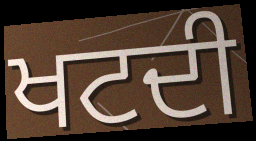
ਖਟਦੀ